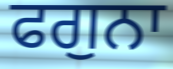
ਫਗੁਨਾ